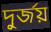
দুৰ্জয়